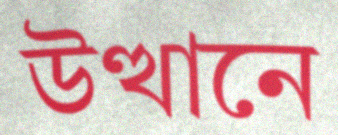
উত্থানে